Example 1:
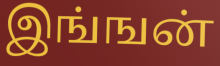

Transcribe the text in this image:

இங்ஙன்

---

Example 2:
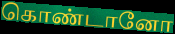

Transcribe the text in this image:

கொண்டானோ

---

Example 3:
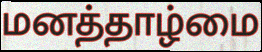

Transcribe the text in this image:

மனத்தாழ்மை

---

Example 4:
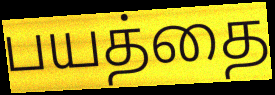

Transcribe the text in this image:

பயத்தை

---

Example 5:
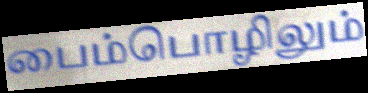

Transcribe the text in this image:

பைம்பொழிலும்